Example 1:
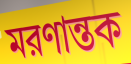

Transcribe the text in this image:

মরণান্তক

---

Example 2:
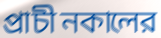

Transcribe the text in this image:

প্রাচীনকালের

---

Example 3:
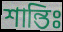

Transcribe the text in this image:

শান্তিঃ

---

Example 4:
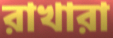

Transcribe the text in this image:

রাখারা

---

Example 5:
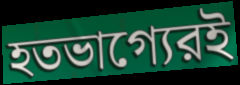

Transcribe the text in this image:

হতভাগ্যেরই